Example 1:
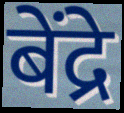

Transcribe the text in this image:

बेंद्रे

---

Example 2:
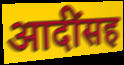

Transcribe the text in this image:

आदींसह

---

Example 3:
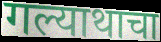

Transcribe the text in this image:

गल्याथाचा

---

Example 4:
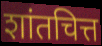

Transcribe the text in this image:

शांतचित्त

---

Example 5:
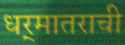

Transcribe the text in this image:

धर्मातराची